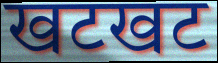
खटखट